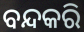
ବନ୍ଦକରି